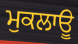
ਮੁਕਲਾਊ